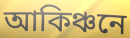
আকিঞ্চনে